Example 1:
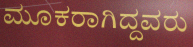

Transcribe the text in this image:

ಮೂಕರಾಗಿದ್ದವರು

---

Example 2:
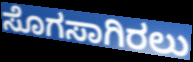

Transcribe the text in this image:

ಸೊಗಸಾಗಿರಲು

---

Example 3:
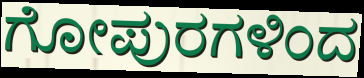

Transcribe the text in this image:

ಗೋಪುರಗಳಿಂದ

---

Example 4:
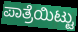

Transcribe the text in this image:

ಪಾತ್ರೆಯಿಟ್ಟು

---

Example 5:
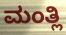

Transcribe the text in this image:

ಮಂತ್ಲಿ